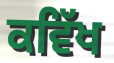
ਕਵਿੱਖ